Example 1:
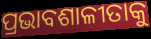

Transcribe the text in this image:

ପ୍ରଭାବଶାଳୀତାକୁ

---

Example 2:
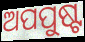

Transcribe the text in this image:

ଅପପୁଷ୍ଟ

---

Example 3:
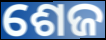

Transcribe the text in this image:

ଶେଜ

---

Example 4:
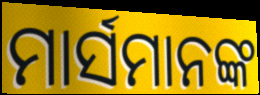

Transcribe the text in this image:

ମାର୍ସମାନଙ୍କ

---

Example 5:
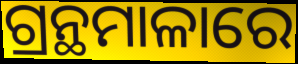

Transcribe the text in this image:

ଗ୍ରନ୍ଥମାଳାରେ